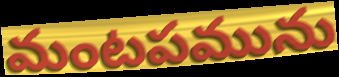
మంటపమును